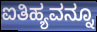
ಐತಿಹ್ಯವನ್ನೂ